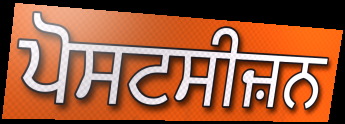
ਪੋਸਟਸੀਜ਼ਨ